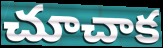
చూచాక